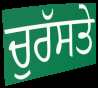
ਚੁਰੱਸਤੇ